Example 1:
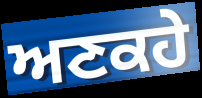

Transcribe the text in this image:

ਅਣਕਹੇ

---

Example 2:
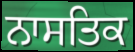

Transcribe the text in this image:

ਨਾਸਤਿਕ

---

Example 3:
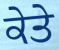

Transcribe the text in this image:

ਕੇਤੇ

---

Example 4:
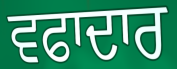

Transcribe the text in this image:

ਵਫਾਦਾਰ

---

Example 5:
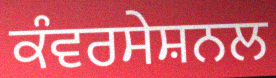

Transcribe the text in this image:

ਕੰਵਰਸੇਸ਼ਨਲ